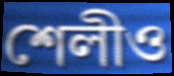
শেলীও